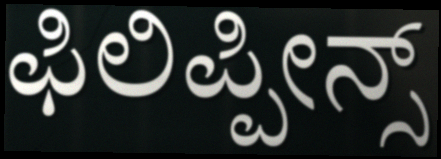
ಫಿಲಿಪ್ಪೀನ್ಸ್